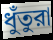
ধুঁতুরা